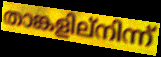
താങ്കളില്നിന്ന്